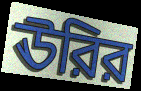
ঊরির